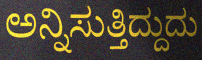
ಅನ್ನಿಸುತ್ತಿದ್ದುದು